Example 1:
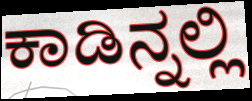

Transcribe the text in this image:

ಕಾಡಿನ್ನಲ್ಲಿ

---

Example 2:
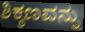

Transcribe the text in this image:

ಶಿಕ್ಶಣವನ್ನು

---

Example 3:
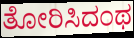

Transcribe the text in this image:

ತೋರಿಸಿದಂಥ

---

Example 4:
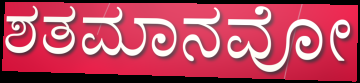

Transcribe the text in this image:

ಶತಮಾನವೋ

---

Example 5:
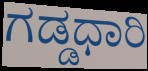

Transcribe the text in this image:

ಗಡ್ಡಧಾರಿ